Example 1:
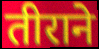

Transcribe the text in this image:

तीराने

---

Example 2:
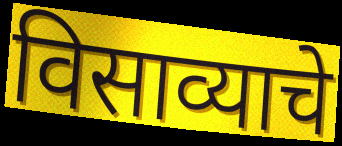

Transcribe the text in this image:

विसाव्याचे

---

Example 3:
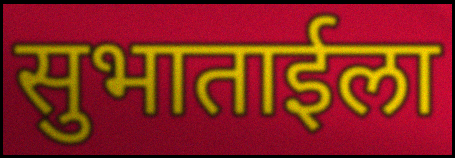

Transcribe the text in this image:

सुभाताईला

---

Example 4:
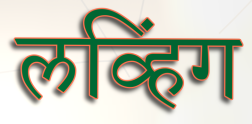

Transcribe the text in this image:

लव्हिंग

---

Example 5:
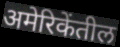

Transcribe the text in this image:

अमेरिकेंतील